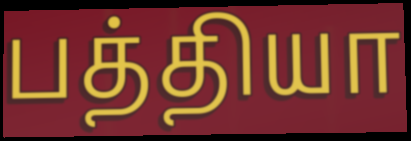
பத்தியா